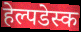
हेल्पडेस्क